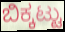
ಬಿಕ್ಕಟ್ಟು